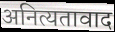
अनित्यतावाद